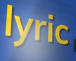
lyric